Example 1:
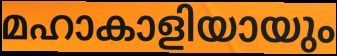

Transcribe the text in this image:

മഹാകാളിയായും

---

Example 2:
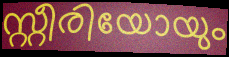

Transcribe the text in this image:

സ്റ്റീരിയോയും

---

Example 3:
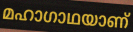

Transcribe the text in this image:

മഹാഗാഥയാണ്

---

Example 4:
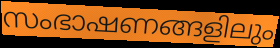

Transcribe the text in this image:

സംഭാഷണങ്ങളിലും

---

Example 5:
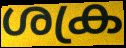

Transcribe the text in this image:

ശക്ര